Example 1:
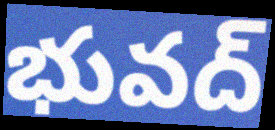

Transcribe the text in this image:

భువద్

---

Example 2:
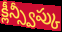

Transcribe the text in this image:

క్లీన్స్వీప్కు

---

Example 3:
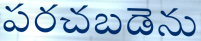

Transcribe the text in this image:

పరచబడెను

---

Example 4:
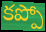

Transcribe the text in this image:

కప్పో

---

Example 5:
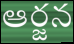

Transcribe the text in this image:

ఆర్జన